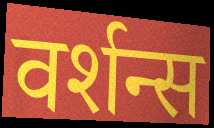
वर्शन्स